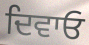
ਦਿਵਾਓ